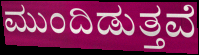
ಮುಂದಿಡುತ್ತವೆ